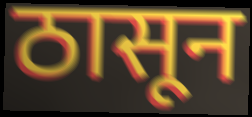
ठासून